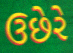
ઉછેરે